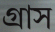
গ্ৰাস